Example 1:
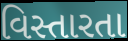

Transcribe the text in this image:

વિસ્તારતા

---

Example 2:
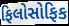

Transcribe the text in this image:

ફિલોસોફિક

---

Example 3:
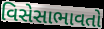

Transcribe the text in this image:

વિસેસાભાવતો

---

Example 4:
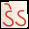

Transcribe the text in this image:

ડેડ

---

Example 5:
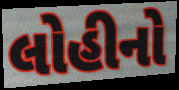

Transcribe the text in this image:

લોહીનો